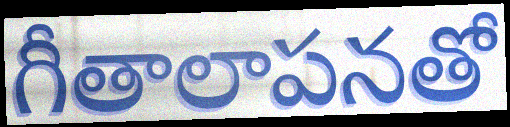
గీతాలాపనతో